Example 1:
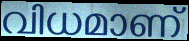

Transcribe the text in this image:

വിധമാണ്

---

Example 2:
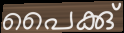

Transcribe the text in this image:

പൈക്കു്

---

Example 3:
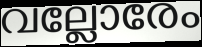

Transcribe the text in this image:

വല്ലോരേം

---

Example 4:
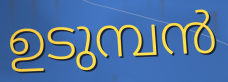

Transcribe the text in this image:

ഉടുമ്പൻ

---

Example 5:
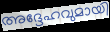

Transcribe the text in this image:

അദ്ദേഹവുമായി